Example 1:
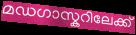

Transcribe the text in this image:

മഡഗാസ്കറിലേക്ക്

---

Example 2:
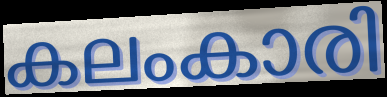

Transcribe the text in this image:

കലംകാരി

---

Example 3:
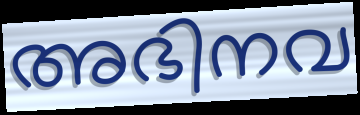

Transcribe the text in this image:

അഭിനവ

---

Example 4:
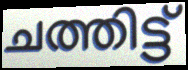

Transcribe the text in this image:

ചത്തിട്ട്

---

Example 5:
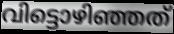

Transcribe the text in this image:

വിട്ടൊഴിഞ്ഞത്